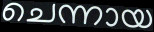
ചെന്നായ